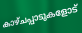
കാഴ്ചപ്പാടുകളോട്